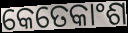
କେତେକାଂଶ